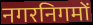
नगरनिगमों